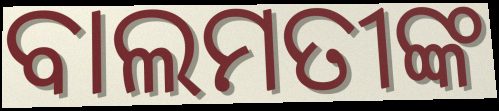
ବାଲମତୀଙ୍କ